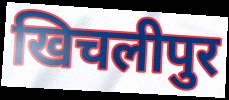
खिचलीपुर